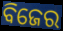
ବିଜେର